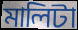
মালিটা